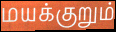
மயக்குறும்